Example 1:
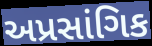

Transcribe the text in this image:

અપ્રસાંગિક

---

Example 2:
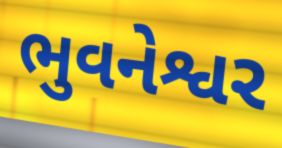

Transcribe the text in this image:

ભુવનેશ્વર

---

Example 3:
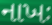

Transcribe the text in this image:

નાખઃ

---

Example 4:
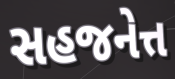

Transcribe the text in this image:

સહજનેત્ત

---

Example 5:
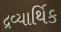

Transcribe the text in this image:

દ્રવ્યાર્થિક